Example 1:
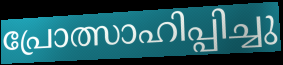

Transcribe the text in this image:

പ്രോത്സാഹിപ്പിച്ചു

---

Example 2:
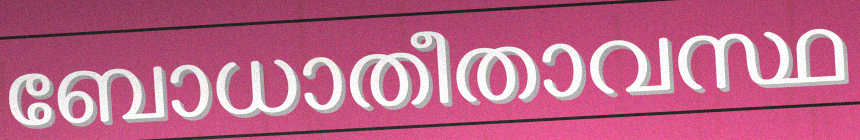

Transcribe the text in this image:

ബോധാതീതാവസ്ഥ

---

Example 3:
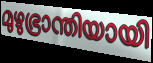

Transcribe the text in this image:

മുഴുഭ്രാന്തിയായി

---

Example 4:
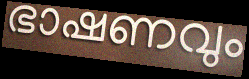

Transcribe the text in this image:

ഭാഷണവും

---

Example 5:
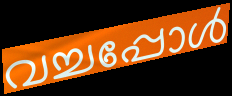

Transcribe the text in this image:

വച്ചപ്പോൾ